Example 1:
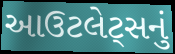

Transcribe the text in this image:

આઉટલેટ્સનું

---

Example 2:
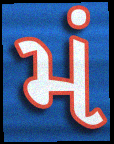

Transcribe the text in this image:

મં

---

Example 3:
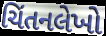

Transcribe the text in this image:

ચિંતનલેખો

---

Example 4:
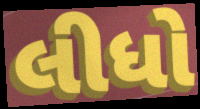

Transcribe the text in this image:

લીધો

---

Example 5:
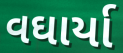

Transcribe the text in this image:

વઘાર્યા